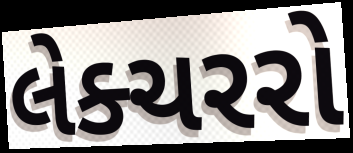
લેક્ચરરો